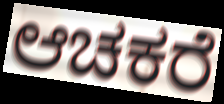
ಆಚಕರೆ